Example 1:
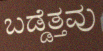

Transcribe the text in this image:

ಬಡ್ಡೆತ್ತವು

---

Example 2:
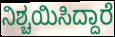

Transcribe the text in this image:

ನಿಶ್ಚಯಿಸಿದ್ದಾರೆ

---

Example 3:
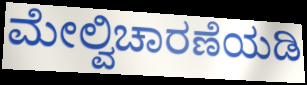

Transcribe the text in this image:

ಮೇಲ್ವಿಚಾರಣೆಯಡಿ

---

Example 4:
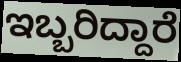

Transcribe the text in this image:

ಇಬ್ಬರಿದ್ದಾರೆ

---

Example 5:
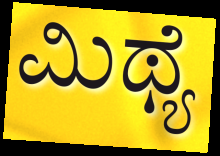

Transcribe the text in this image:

ಮಿಥ್ಯೆ